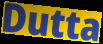
Dutta